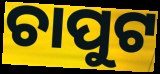
ଚାପୁଟ